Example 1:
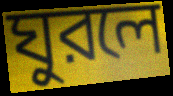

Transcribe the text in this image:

ঘুরলে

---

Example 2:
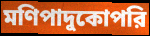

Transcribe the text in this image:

মণিপাদুকোপরি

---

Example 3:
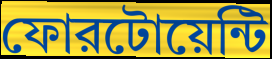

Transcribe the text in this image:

ফোরটোয়েন্টি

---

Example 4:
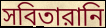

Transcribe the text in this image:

সবিতারানি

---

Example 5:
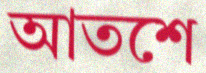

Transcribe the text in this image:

আতশে